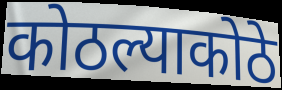
कोठल्याकोठे